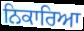
ਨਿਕਾਰਿਆ